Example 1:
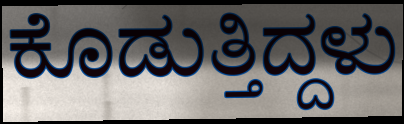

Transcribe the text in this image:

ಕೊಡುತ್ತಿದ್ದಳು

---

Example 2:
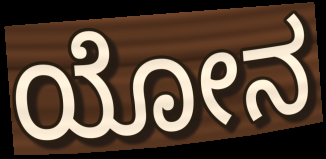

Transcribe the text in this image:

ಯೋನ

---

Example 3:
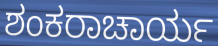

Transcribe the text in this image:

ಶಂಕರಾಚಾರ್ಯ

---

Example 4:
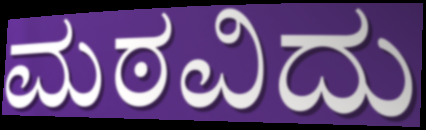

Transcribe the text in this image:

ಮಠವಿದು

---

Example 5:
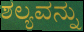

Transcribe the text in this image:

ಶಲ್ಯವನ್ನು